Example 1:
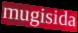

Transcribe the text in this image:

mugisida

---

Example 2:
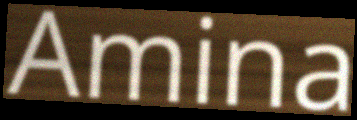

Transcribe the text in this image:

Amina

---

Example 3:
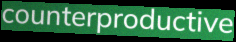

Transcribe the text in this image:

counterproductive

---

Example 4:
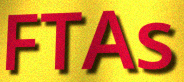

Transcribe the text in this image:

FTAs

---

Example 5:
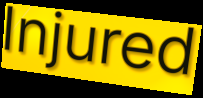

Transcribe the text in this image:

Injured